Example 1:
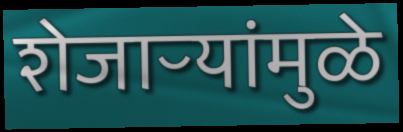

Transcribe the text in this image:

शेजाऱ्यांमुळे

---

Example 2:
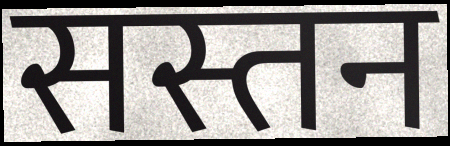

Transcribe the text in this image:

सस्तन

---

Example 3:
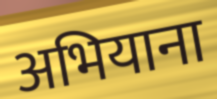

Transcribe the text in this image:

अभियाना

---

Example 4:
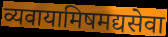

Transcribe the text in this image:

व्यवायामिषमद्यसेवा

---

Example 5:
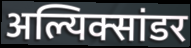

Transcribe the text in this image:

अल्यिक्सांडर